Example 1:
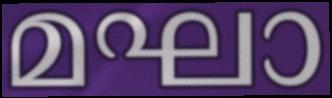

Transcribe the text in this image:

മഘാ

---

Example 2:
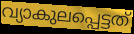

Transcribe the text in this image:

വ്യാകുലപ്പെട്ടത്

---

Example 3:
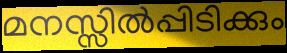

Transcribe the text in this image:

മനസ്സിൽപ്പിടിക്കും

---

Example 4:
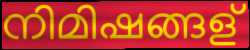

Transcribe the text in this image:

നിമിഷങ്ങള്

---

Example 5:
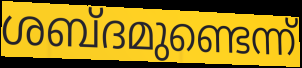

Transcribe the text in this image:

ശബ്ദമുണ്ടെന്ന്